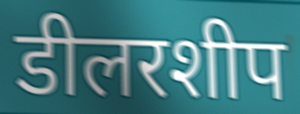
डीलरशीप